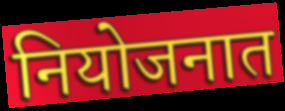
नियोजनात